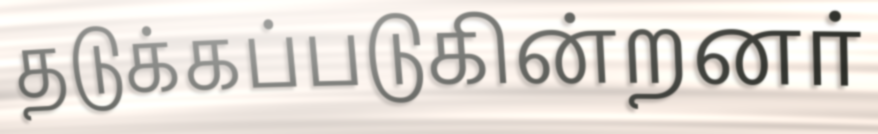
தடுக்கப்படுகின்றனர்